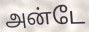
அன்டே